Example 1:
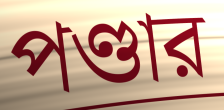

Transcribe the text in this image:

পণ্ডার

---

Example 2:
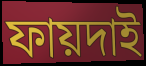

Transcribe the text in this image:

ফায়দাই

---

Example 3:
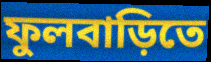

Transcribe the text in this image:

ফুলবাড়িতে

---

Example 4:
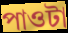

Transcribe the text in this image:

পাওটা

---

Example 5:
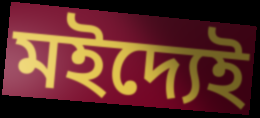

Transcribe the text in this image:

মইদ্যেই